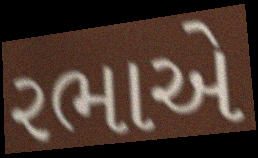
રભાએ